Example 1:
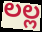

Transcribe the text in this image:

లల్ల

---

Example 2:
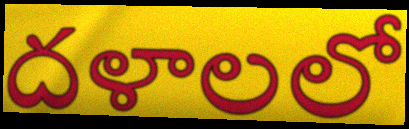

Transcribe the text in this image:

దళాలలో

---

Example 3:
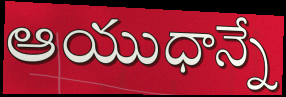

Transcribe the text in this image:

ఆయుధాన్నే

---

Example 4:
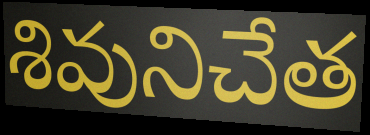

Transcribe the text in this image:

శివునిచేత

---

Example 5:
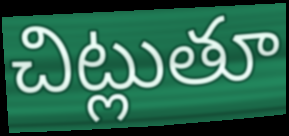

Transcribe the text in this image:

చిట్లుతూ